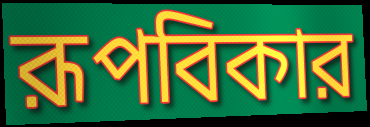
রূপবিকার